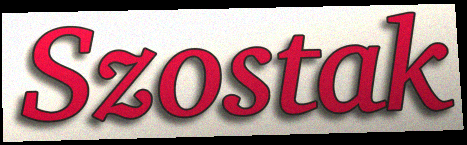
Szostak